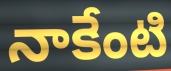
నాకేంటి